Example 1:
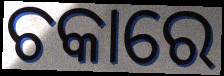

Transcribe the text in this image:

ଚକାରେ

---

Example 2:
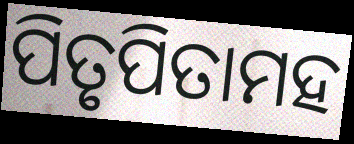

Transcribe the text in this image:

ପିତୃପିତାମହ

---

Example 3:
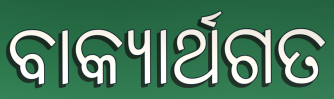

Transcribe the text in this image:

ବାକ୍ୟାର୍ଥଗତ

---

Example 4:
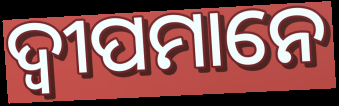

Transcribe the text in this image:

ଦ୍ୱୀପମାନେ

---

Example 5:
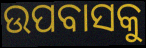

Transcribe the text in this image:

ଉପବାସକୁ